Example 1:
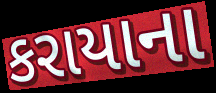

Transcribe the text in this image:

કરાયાના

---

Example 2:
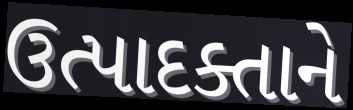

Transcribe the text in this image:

ઉત્પાદક્તાને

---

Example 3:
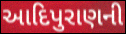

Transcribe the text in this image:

આદિપુરાણની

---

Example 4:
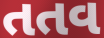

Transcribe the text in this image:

તતવ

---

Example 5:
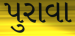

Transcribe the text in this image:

પુરાવા